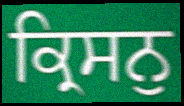
ਕ੍ਰਿਸਨੁ